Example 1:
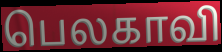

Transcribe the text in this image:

பெலகாவி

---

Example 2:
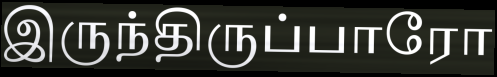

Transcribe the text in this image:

இருந்திருப்பாரோ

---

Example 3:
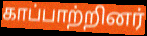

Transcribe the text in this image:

காப்பாற்றினர்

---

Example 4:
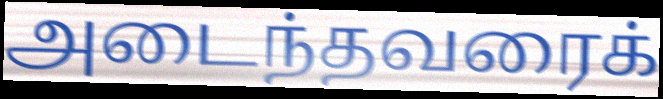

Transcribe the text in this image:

அடைந்தவரைக்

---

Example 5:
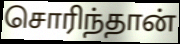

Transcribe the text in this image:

சொரிந்தான்